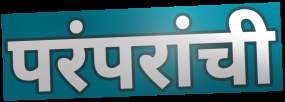
परंपरांची